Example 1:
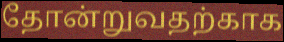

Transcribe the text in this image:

தோன்றுவதற்காக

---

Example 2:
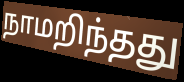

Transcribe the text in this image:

நாமறிந்தது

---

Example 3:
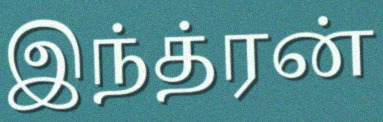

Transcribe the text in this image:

இந்த்ரன்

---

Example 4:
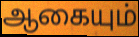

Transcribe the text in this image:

ஆகையும்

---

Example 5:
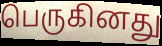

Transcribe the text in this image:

பெருகினது